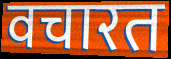
वचारत